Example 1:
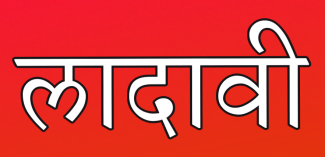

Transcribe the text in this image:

लादावी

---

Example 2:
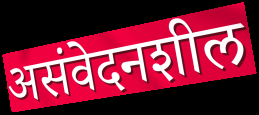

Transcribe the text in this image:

असंवेदनशील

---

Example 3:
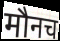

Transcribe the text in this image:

मौनच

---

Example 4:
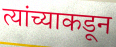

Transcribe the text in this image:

त्यांच्याकडून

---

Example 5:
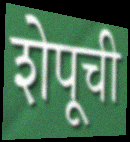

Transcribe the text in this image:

शेपूची